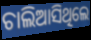
ଚାଲିଆସିଥିଲେ